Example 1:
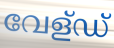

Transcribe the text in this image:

വേള്ഡ്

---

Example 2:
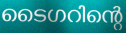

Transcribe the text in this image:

ടൈഗറിന്റെ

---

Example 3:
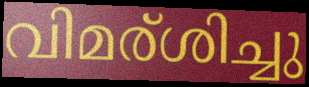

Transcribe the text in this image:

വിമര്ശിച്ചു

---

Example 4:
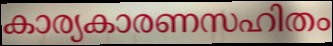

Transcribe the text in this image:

കാര്യകാരണസഹിതം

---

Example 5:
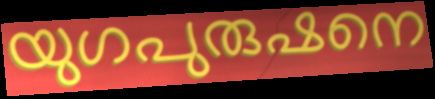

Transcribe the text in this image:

യുഗപുരുഷനെ